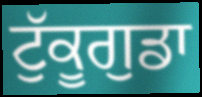
ਟੁੱਕੂਗੁਡਾ